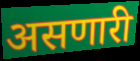
असणारी